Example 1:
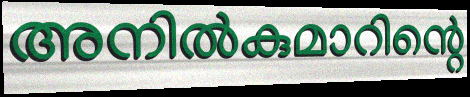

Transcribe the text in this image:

അനിൽകുമാറിന്റെ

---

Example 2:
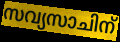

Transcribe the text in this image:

സവ്യസാചിന്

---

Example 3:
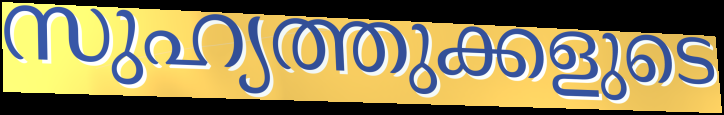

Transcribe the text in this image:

സുഹ്യത്തുക്കളുടെ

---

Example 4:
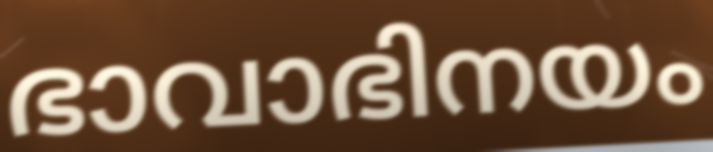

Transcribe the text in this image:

ഭാവാഭിനയം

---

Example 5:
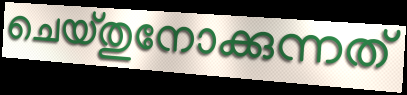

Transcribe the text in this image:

ചെയ്തുനോക്കുന്നത്